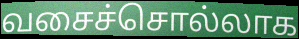
வசைச்சொல்லாக